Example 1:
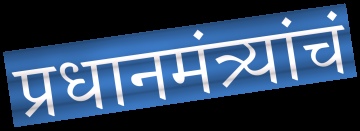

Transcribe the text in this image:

प्रधानमंत्र्यांचं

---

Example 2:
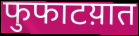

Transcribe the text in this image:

फुफाटय़ात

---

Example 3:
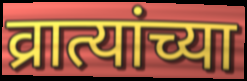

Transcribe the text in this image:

व्रात्यांच्या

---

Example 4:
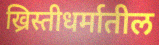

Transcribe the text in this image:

ख्रिस्तीधर्मातील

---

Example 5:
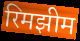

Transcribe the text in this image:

रिमझीम